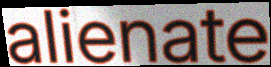
alienate